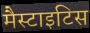
मैस्टाइटिस